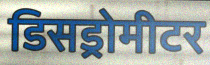
डिसड्रोमीटर